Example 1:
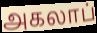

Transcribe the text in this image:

அகலாப்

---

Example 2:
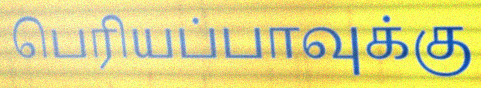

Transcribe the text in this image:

பெரியப்பாவுக்கு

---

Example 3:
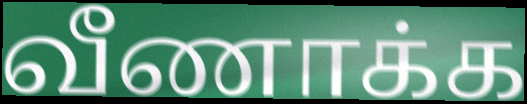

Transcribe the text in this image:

வீணாக்க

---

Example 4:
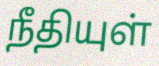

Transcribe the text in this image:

நீதியுள்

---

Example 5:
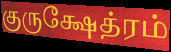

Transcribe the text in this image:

குருக்ஷேத்ரம்